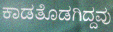
ಕಾಡತೊಡಗಿದ್ದವು